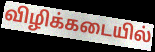
விழிக்கடையில்